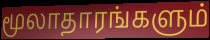
மூலாதாரங்களும்